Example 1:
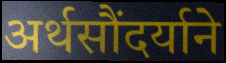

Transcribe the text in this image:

अर्थसौंदर्याने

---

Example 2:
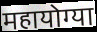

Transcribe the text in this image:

महायोग्या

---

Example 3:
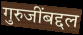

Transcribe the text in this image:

गुरुजींबद्दल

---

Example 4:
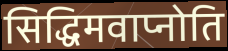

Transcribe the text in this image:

सिद्धिमवाप्नोति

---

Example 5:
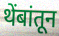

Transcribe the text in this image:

थेंबांतून